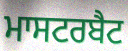
ਮਾਸਟਰਬੈਟ